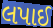
લપાઈ